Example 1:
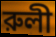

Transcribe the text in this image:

রুলী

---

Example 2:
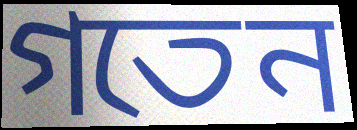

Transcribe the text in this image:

গতেন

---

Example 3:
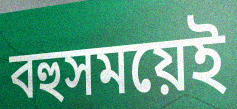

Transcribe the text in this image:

বহুসময়েই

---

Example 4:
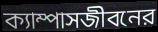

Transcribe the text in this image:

ক্যাম্পাসজীবনের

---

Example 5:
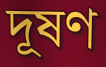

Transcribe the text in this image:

দূষণ